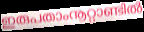
ഇരുപതാംനൂറ്റാണ്ടിൽ